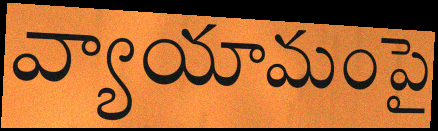
వ్యాయామంపై